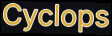
Cyclops